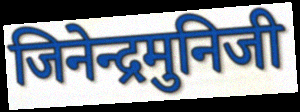
जिनेन्द्रमुनिजी